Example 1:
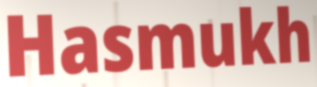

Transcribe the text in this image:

Hasmukh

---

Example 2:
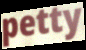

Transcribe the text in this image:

petty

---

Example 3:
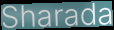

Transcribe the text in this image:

Sharada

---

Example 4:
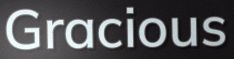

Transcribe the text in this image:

Gracious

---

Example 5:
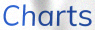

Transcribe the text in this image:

Charts